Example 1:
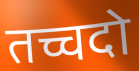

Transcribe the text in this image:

तच्चदो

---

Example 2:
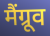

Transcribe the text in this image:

मैंग्रूव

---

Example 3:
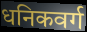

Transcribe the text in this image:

धनिकवर्ग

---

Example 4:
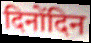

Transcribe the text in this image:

दिनोंदिन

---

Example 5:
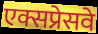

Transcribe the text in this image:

एक्सप्रेसवे